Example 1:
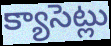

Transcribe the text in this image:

క్యాసెట్లు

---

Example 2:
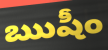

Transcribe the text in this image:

ఋషీం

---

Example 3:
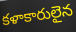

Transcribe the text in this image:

కళాకారులైన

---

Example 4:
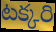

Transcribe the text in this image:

టక్కరి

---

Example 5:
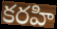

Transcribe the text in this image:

కరహి